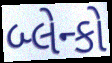
બ્લેન્કો